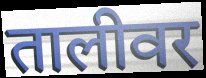
तालीवर